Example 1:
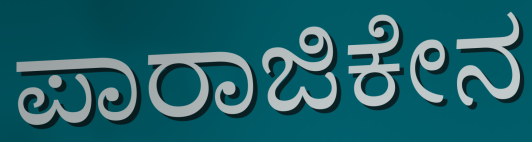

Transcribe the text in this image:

ಪಾರಾಜಿಕೇನ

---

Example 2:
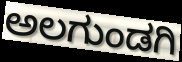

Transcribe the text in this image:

ಅಲಗುಂಡಗಿ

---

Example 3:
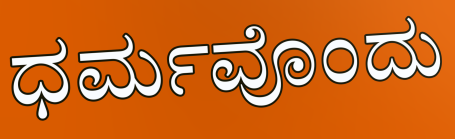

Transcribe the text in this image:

ಧರ್ಮವೊಂದು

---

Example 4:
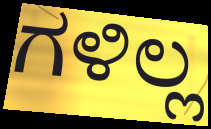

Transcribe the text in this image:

ಗಳಿಲ್ಲ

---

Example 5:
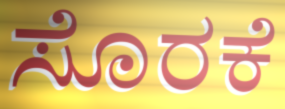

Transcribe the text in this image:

ಸೊರಕೆ